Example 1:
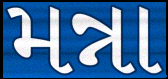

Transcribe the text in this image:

મન્ના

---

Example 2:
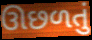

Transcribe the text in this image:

ઊછળતું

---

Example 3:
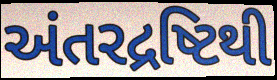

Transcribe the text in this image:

અંતરદ્રષ્ટિથી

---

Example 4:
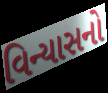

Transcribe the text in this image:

વિન્યાસનો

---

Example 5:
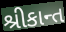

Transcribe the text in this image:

શ્રીકાન્ત